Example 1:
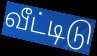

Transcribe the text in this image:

வீட்டிடு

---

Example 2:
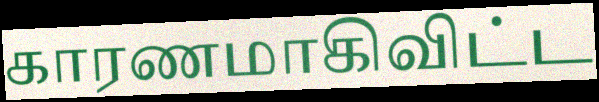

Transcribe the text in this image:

காரணமாகிவிட்ட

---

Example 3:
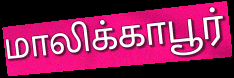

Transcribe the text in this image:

மாலிக்காபூர்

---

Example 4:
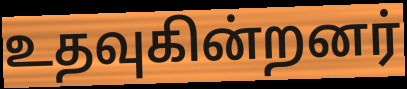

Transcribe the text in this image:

உதவுகின்றனர்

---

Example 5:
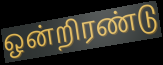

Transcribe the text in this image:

ஒன்றிரண்டு